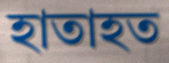
হাতাহত